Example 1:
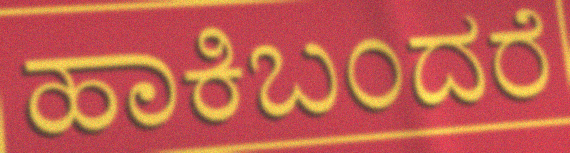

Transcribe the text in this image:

ಹಾಕಿಬಂದರೆ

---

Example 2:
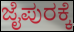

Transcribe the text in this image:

ಜೈಪುರಕ್ಕೆ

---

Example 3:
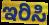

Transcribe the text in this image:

ಇರಿಸಿ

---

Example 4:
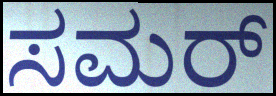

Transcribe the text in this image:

ಸಮರ್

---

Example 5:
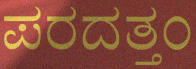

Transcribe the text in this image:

ಪರದತ್ತಂ